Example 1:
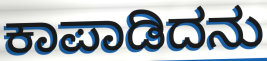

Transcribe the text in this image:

ಕಾಪಾಡಿದನು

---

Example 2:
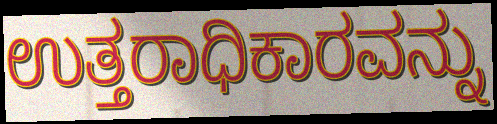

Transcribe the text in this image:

ಉತ್ತರಾಧಿಕಾರವನ್ನು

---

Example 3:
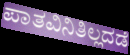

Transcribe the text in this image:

ಪಾತವಿನಿತಿಲ್ಲದಡೆ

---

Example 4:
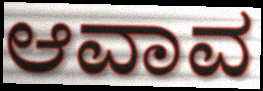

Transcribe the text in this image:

ಆವಾವ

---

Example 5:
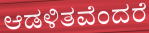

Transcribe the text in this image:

ಆಡಳಿತವೆಂದರೆ